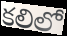
కలిలో